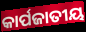
କାର୍ପଜାତୀୟ